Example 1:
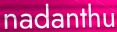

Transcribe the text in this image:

nadanthu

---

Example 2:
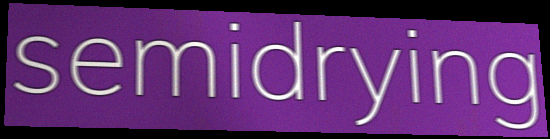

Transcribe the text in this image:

semidrying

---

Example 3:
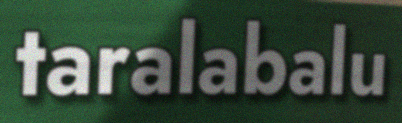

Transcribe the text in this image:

taralabalu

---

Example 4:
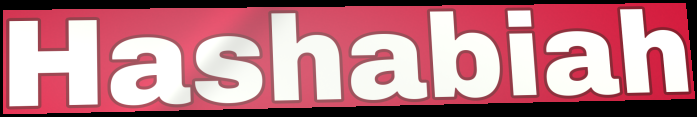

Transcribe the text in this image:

Hashabiah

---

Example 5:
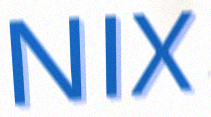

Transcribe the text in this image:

NIX